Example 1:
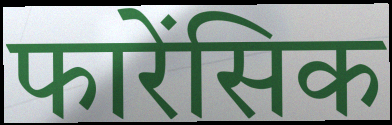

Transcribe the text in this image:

फारेंसिक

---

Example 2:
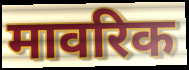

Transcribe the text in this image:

मावरिक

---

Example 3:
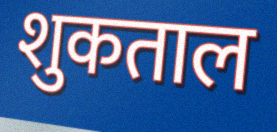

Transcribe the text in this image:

शुकताल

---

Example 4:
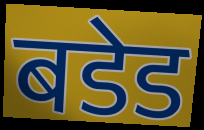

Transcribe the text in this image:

बडेड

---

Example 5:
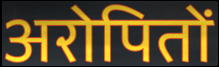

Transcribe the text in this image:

अरोपितों